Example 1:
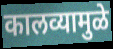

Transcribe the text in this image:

कालव्यामुळे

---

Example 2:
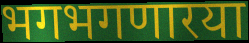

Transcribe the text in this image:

भगभगणारया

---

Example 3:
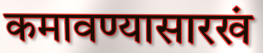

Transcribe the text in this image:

कमावण्यासारखं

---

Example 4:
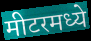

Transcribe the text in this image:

मीटरमध्ये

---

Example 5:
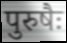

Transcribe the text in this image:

पुरुषैः